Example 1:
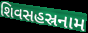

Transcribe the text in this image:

શિવસહસ્રનામ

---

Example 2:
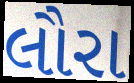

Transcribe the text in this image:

લૌરા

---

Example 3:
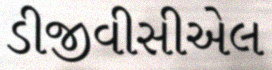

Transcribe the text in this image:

ડીજીવીસીએલ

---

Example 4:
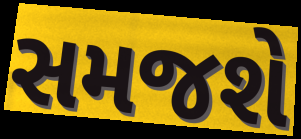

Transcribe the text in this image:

સમજશે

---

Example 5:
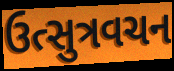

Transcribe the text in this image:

ઉત્સુત્રવચન